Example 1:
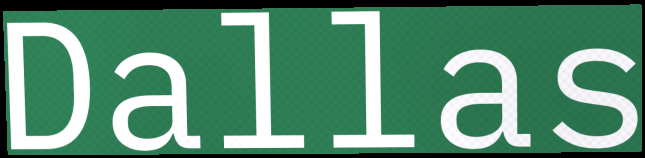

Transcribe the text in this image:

Dallas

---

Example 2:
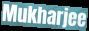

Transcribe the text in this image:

Mukharjee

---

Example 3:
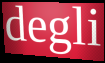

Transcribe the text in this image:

degli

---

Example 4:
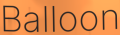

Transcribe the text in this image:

Balloon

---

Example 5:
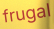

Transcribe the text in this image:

frugal